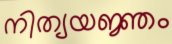
നിത്യയജ്ഞം